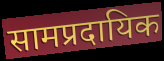
सामप्रदायिक